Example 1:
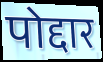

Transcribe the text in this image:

पोद्दार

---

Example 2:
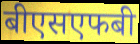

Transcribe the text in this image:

बीएसएफबी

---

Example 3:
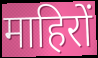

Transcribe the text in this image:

माहिरों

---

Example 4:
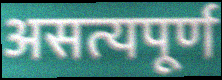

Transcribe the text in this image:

असत्यपूर्ण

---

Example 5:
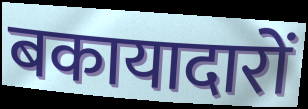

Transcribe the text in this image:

बकायादारों